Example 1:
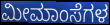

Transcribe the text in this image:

ಮೀಮಾಂಸೆಗಳ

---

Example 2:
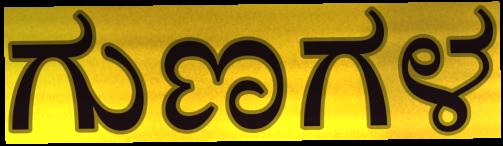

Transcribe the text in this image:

ಗುಣಗಳ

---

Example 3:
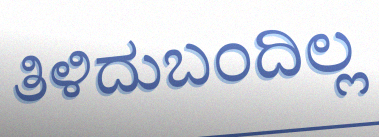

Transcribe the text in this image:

ತಿಳಿದುಬಂದಿಲ್ಲ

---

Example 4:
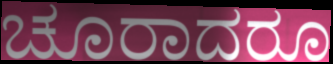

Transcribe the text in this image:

ಚೂರಾದರೂ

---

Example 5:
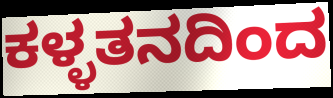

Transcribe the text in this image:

ಕಳ್ಳತನದಿಂದ